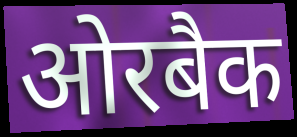
ओरबैक